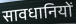
सावधानियों